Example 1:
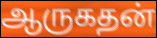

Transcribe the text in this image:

ஆருகதன்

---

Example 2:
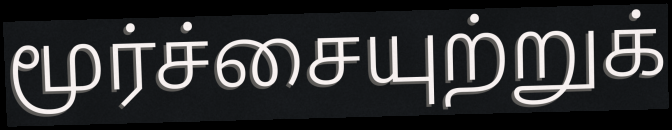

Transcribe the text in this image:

மூர்ச்சையுற்றுக்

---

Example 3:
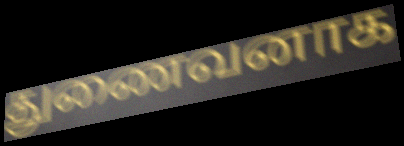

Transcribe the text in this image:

துணைவனாக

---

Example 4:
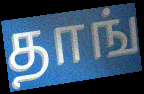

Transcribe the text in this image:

தாங்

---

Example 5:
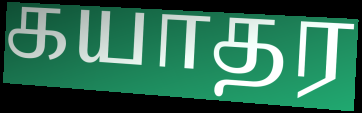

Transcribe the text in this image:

கயாதர